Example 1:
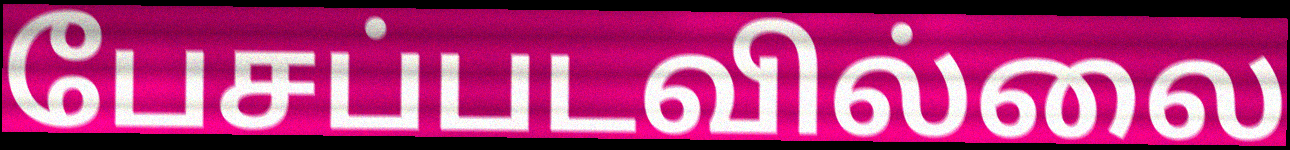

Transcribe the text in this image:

பேசப்படவில்லை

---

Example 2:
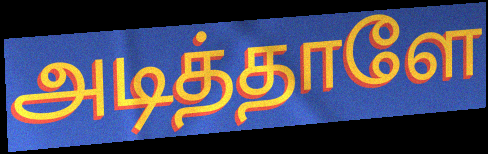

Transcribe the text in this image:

அடித்தாளே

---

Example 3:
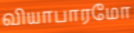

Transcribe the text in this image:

வியாபாரமோ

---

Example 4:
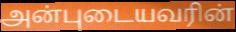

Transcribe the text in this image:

அன்புடையவரின்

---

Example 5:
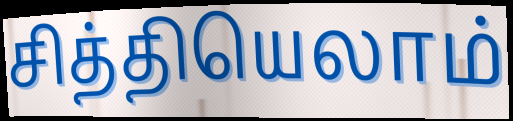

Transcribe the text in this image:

சித்தியெலாம்